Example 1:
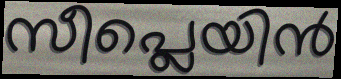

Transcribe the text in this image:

സീപ്ലെയിൻ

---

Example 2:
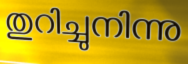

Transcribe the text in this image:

തുറിച്ചുനിന്നു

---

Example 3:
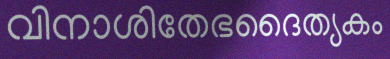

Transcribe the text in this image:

വിനാശിതേഭദൈത്യകം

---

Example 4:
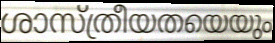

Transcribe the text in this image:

ശാസ്ത്രീയതയെയും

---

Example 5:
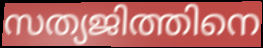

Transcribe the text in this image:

സത്യജിത്തിനെ